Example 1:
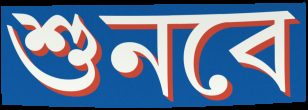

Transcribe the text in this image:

শুনবে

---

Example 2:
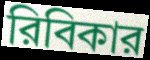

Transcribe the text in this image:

রিবিকার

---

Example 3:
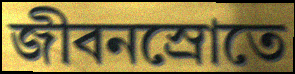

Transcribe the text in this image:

জীবনস্রোতে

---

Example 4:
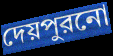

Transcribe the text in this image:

দেয়পুরনো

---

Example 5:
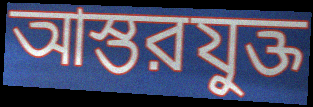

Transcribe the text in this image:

আস্তরযুক্ত